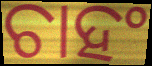
ଚାହଂ